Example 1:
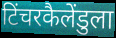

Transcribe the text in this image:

टिंचरकैलेंडुला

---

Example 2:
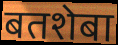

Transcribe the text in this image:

बतशेबा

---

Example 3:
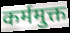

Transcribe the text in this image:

कर्ममुक्त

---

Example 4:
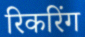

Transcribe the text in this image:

रिकरिंग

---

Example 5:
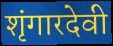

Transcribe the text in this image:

शृंगारदेवी